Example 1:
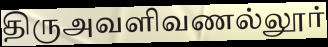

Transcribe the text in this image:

திருஅவளிவணல்லூர்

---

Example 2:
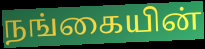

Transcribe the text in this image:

நங்கையின்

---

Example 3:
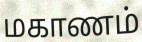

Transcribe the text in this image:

மகாணம்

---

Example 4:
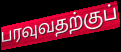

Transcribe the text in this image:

பரவுவதற்குப்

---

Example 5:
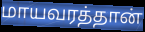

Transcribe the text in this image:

மாயவரத்தான்